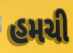
હમચી